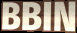
BBIN